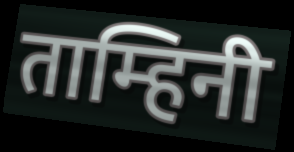
ताम्हिनी